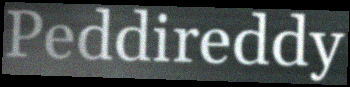
Peddireddy